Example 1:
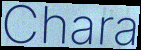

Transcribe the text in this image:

Chara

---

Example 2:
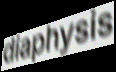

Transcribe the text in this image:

diaphysis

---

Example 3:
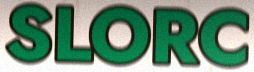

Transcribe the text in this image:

SLORC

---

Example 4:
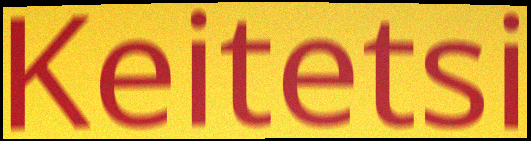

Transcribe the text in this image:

Keitetsi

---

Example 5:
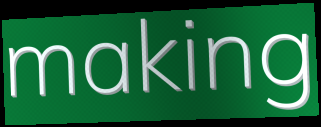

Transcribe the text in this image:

making